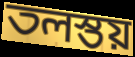
তলস্তয়